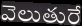
వెలుతురే